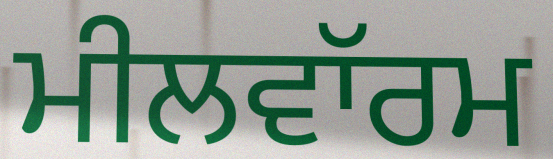
ਮੀਲਵਾੱਰਮ